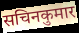
सचिनकुमार